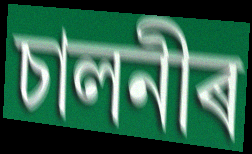
চালনীৰ